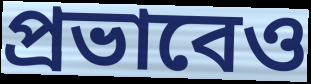
প্রভাবেও